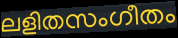
ലളിതസംഗീതം